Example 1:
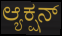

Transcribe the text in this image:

ಆ್ಯಕ್ಷನ್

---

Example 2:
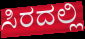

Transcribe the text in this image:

ಸಿರದಲ್ಲಿ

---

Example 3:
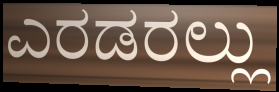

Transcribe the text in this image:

ಎರಡರಲ್ಲು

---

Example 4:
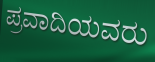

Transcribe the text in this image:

ಪ್ರವಾದಿಯವರು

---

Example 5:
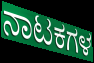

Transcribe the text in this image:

ನಾಟಕಗಳ